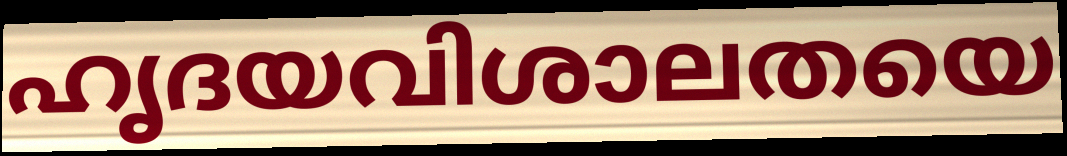
ഹൃദയവിശാലതയെ